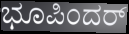
ಭೂಪಿಂದರ್